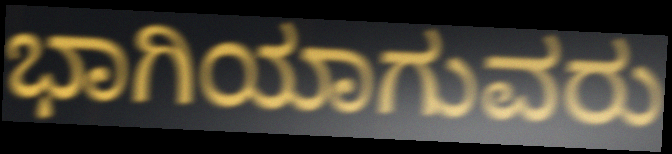
ಭಾಗಿಯಾಗುವರು